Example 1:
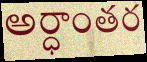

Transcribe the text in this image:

అర్ధాంతర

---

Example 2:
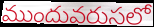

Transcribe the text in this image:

ముందువరుసలో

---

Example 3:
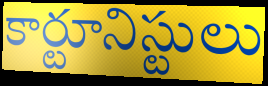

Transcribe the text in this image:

కార్టూనిస్టులు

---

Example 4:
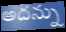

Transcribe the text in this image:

అదన్ను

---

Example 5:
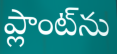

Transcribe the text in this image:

ప్లాంట్‌ను